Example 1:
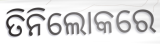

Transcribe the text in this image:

ତିନିଲୋକରେ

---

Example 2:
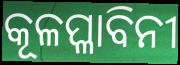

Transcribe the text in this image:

କୂଳପ୍ଳାବିନୀ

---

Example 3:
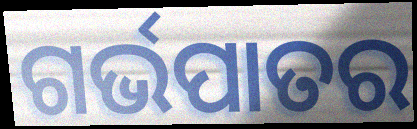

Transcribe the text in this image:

ଗର୍ଭପାତର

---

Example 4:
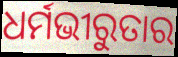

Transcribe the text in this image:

ଧର୍ମଭୀରୁତାର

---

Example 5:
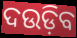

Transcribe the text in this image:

ଦଉଡ଼ିବ